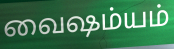
வைஷம்யம்